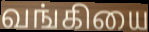
வங்கியை